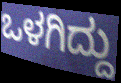
ಒಳಗಿದ್ದು